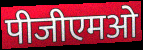
पीजीएमओ